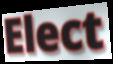
Elect